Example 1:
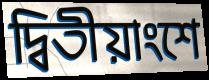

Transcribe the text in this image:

দ্বিতীয়াংশে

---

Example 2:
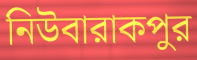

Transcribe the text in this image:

নিউবারাকপুর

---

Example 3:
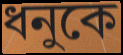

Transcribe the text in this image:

ধনুকে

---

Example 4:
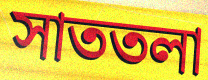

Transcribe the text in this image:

সাততলা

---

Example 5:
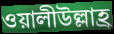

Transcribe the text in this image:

ওয়ালীউল্লাহ্র